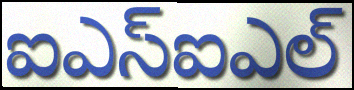
ఐఎస్ఐఎల్